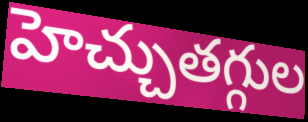
హెచ్చుతగ్గుల